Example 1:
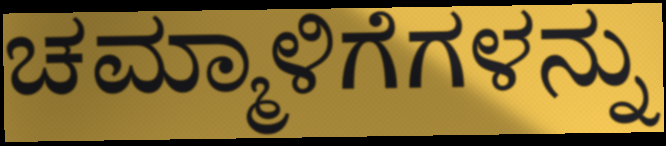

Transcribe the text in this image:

ಚಮ್ಮಾಳಿಗೆಗಳನ್ನು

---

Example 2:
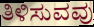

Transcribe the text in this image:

ತಿಳಿಸುವವು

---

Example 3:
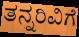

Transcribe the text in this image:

ತನ್ನರಿವಿಗೆ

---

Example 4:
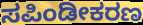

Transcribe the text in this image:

ಸಪಿಂಡೀಕರಣ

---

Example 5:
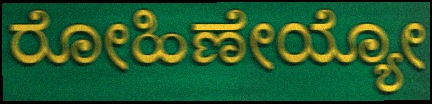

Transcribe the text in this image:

ರೋಹಿಣೇಯ್ಯೋ